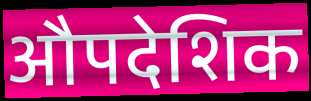
औपदेशिक